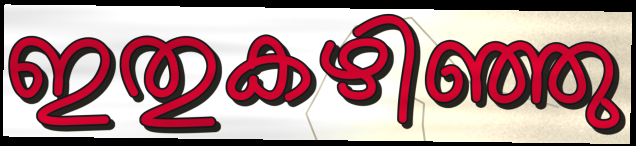
ഇതുകഴിഞ്ഞു